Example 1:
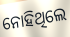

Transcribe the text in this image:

ନୋହିଥିଲେ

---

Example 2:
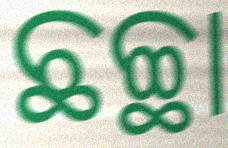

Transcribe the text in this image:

ଛଚ୍ଛା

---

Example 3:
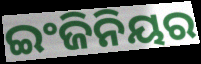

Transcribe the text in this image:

ଇଂଜିନିୟର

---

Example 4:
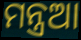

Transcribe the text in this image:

ମନ୍ତ୍ରଆ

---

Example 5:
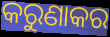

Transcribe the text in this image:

କରୁଣାକର